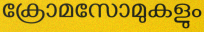
ക്രോമസോമുകളും